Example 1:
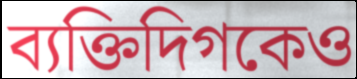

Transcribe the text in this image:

ব্যক্তিদিগকেও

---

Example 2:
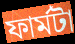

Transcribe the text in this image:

ফার্মটা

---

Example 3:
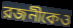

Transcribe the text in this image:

রজনীকেও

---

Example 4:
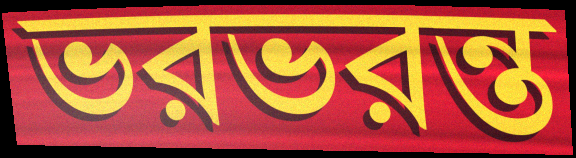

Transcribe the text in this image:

ভরভরন্ত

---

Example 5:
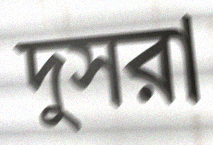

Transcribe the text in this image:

দুসরা